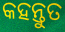
କହନ୍ତୁତ